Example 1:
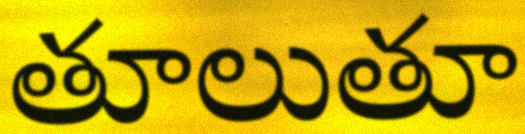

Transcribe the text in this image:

తూలుతూ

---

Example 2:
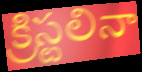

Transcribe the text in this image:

క్రిస్టలినా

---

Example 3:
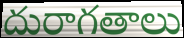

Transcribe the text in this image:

దురాగతాలు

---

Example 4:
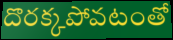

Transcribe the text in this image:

దొరక్కపోవటంతో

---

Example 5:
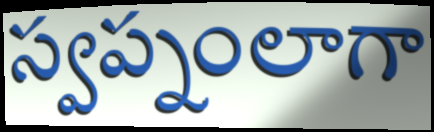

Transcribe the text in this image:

స్వప్నంలాగా